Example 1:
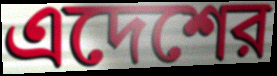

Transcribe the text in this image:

এদেশের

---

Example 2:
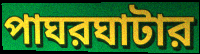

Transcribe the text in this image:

পাঘরঘাটার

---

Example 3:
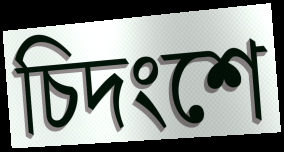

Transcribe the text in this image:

চিদংশে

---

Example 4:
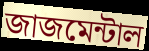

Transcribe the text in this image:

জাজমেন্টাল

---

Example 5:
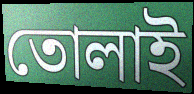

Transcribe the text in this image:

তোলাই